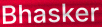
Bhasker